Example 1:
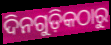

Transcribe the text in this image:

ଦିନଗୁଡ଼ିକଠାରୁ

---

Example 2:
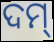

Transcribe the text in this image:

ଦମ୍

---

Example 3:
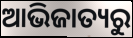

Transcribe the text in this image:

ଆଭିଜାତ୍ୟରୁ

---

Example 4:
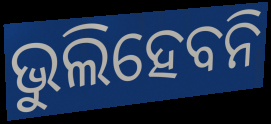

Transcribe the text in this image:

ଭୁଲିହେବନି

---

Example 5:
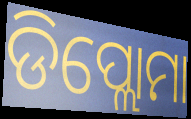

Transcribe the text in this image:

ଡିପ୍ଲୋମା